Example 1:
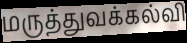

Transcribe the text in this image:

மருத்துவக்கல்வி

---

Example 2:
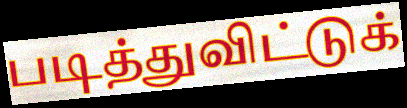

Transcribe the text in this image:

படித்துவிட்டுக்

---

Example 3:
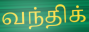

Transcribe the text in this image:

வந்திக்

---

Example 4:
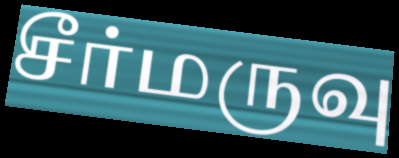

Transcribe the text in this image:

சீர்மருவு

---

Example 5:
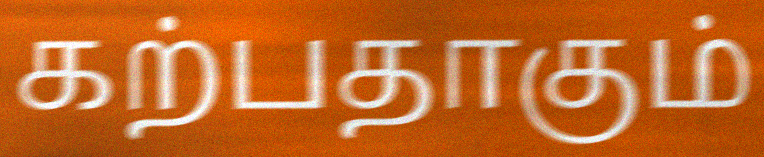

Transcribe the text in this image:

கற்பதாகும்